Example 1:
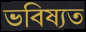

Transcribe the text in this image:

ভবিষ্যত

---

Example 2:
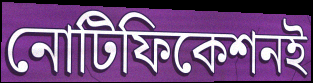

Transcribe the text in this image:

নোটিফিকেশনই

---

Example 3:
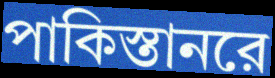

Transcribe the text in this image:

পাকিস্তানরে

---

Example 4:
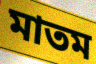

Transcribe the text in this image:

মাতম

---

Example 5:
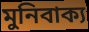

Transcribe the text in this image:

মুনিবাক্য